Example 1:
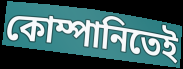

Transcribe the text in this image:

কোম্পানিতেই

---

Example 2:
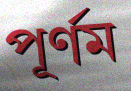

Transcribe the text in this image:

পূর্ণম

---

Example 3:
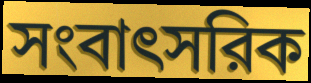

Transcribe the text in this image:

সংবাৎসরিক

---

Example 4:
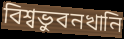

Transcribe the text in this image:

বিশ্বভুবনখানি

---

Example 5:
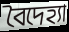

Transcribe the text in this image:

বৈদেহ্যা